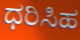
ಧರಿಸಿಹ